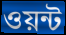
ওয়ন্ট